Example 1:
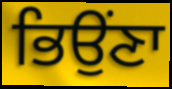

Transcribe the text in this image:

ਭਿਉਂਣਾ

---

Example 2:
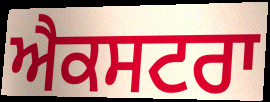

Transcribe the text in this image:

ਐਕਸਟਰਾ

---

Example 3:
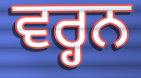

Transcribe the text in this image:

ਵਰ੍ਹਨ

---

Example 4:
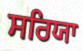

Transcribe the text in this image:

ਸਰਿਯਾ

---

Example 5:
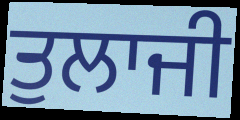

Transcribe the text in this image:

ਤੁਲਾਜੀ